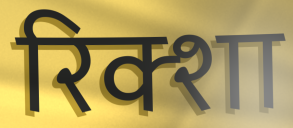
रिक्‍शा